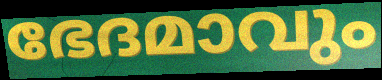
ഭേദമാവും